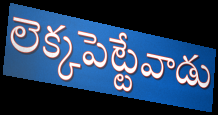
లెక్కపెట్టేవాడు